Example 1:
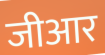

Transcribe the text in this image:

जीआर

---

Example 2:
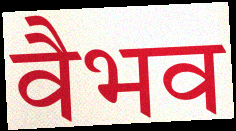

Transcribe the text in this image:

वैभव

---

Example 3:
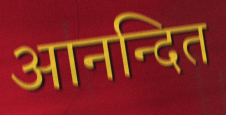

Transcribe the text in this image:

आनन्दित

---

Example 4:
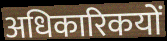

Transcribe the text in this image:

अधिकारिकयों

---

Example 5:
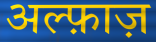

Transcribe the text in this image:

अल्फ़ाज़